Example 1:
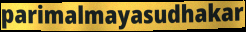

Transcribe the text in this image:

parimalmayasudhakar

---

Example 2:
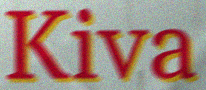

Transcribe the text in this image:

Kiva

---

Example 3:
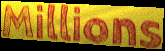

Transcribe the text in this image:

Millions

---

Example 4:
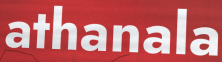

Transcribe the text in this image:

athanala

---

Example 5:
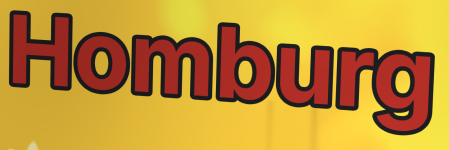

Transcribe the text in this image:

Homburg